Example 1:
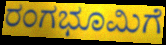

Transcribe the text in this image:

ರಂಗಭೂಮಿಗೆ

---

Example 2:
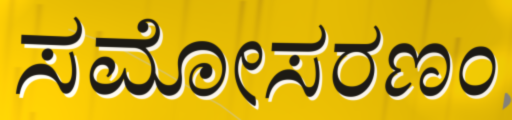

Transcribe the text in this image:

ಸಮೋಸರಣಂ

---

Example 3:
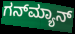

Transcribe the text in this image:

ಗನ್‌ಮ್ಯಾನ್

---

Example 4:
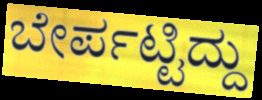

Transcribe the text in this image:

ಬೇರ್ಪಟ್ಟಿದ್ದು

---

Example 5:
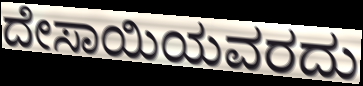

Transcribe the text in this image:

ದೇಸಾಯಿಯವರದು